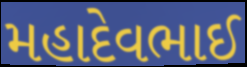
મહાદેવભાઈ